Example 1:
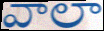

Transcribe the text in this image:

వాలా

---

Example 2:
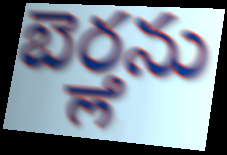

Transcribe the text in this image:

బెర్త్లను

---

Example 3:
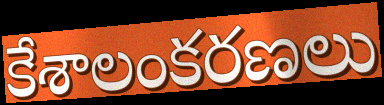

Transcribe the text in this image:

కేశాలంకరణలు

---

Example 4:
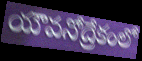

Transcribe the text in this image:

యౌవనోద్రేకంలో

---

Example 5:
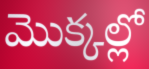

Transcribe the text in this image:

మొక్కల్లో